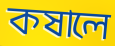
কষালে